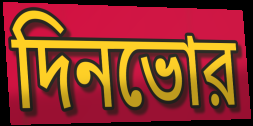
দিনভোর